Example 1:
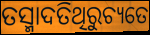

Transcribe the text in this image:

ତସ୍ମାଦତିଥିରୁଚ୍ୟତେ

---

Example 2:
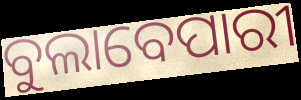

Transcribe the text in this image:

ବୁଲାବେପାରୀ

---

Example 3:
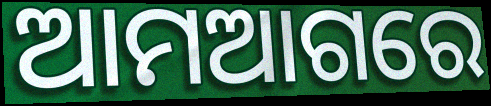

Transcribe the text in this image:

ଆମଆଗରେ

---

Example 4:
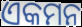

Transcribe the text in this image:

ଏକମନ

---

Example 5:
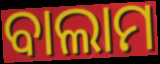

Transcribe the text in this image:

ବାଲାମ